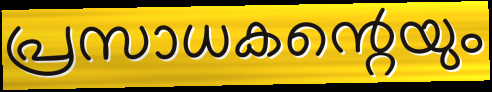
പ്രസാധകന്റെയും